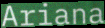
Ariana